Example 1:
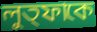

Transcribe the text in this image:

লুত্ফাকে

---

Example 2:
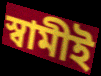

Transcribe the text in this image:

স্বামীই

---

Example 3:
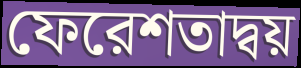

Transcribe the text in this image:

ফেরেশতাদ্বয়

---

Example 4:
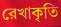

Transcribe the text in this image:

রেখাকৃতি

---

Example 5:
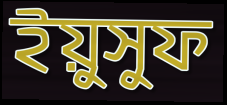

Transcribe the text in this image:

ইয়ুসুফ